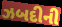
ઝબદીની